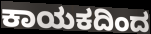
ಕಾಯಕದಿಂದ